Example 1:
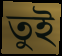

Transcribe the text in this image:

তুই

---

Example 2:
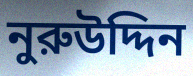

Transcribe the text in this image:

নুরুউদ্দিন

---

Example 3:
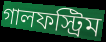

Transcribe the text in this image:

গালফস্ট্রিম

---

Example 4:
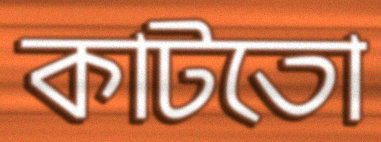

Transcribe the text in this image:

কাটতো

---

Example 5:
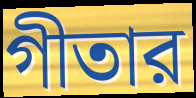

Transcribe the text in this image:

গীতার